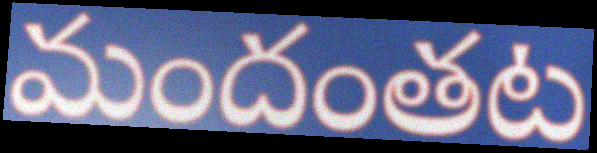
మందంతట